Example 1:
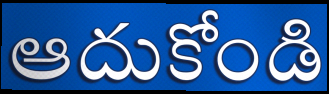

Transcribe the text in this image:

ఆదుకోండి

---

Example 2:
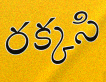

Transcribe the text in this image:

రక్కసి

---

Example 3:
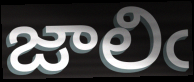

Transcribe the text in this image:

జాలిఁ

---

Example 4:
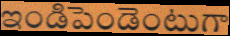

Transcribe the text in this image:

ఇండిపెండెంటుగా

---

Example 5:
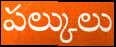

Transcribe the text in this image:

పల్కులు